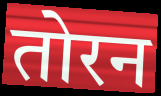
तोरन